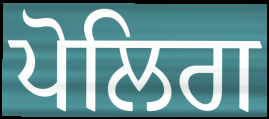
ਪੋਲਿਗ